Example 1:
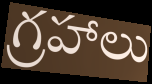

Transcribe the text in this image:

గ్రహాలు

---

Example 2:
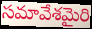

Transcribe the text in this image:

సమావేశమైరి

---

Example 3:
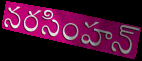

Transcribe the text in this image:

నరసింహన్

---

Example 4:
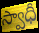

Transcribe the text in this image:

స్వాధీ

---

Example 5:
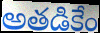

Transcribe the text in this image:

అతడికేం